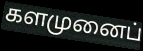
களமுனைப்